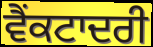
ਵੈਂਕਟਾਦਰੀ